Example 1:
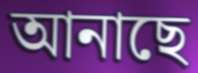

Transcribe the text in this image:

আনাছে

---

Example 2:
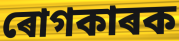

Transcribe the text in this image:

ৰোগকাৰক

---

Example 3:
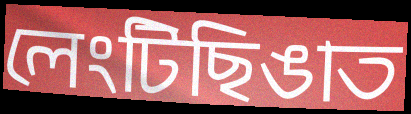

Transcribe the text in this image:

লেংটিছিঙাত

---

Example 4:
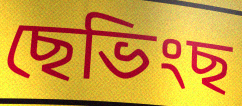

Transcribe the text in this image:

ছেভিংছ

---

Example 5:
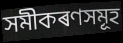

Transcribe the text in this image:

সমীকৰণসমূহ